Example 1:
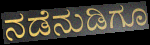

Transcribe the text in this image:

ನಡೆನುಡಿಗೂ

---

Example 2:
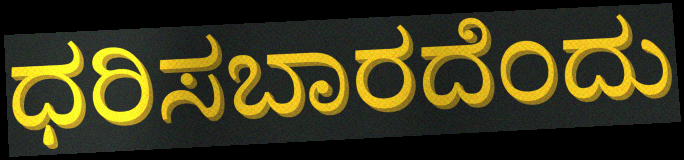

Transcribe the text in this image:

ಧರಿಸಬಾರದೆಂದು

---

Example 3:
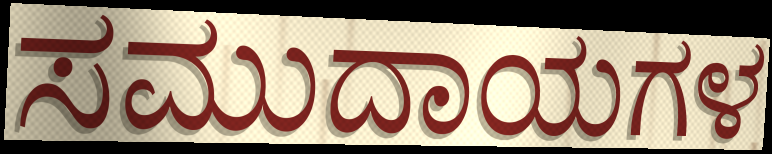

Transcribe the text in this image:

ಸಮುದಾಯಗಳ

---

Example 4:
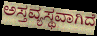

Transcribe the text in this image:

ಅಸ್ತವ್ಯಸ್ಥವಾಗಿದೆ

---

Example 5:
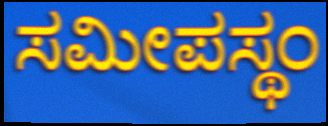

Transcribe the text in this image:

ಸಮೀಪಸ್ಥಂ